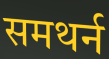
समथर्न